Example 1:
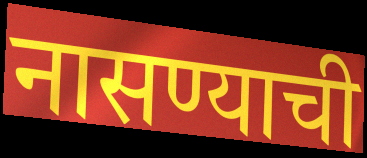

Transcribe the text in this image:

नासण्याची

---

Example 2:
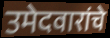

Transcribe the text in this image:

उमेदवारांचे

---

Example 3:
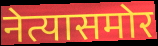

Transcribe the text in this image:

नेत्यासमोर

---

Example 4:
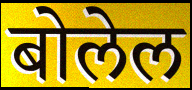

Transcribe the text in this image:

बोलेल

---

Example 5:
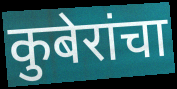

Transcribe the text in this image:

कुबेरांचा